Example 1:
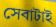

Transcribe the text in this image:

সেবাটাই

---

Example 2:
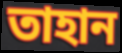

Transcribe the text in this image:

তাহান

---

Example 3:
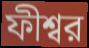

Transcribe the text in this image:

ফীশ্বর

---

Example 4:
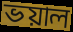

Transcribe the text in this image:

ভয়াল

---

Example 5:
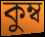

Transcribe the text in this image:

কুম্ব